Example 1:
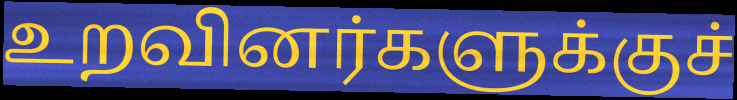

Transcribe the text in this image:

உறவினர்களுக்குச்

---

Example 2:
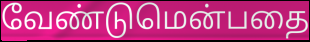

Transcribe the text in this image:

வேண்டுமென்பதை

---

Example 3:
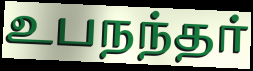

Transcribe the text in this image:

உபநந்தர்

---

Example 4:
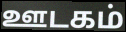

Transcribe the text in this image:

ஊடகம்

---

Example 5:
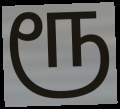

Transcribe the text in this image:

ரூ